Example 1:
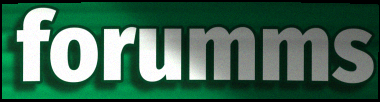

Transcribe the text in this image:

forumms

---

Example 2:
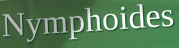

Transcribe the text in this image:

Nymphoides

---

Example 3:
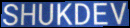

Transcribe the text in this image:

SHUKDEV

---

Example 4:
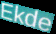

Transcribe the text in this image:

Ekde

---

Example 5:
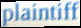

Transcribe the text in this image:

plaintiff